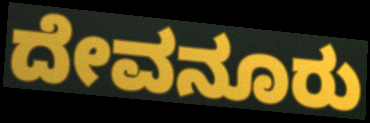
ದೇವನೂರು